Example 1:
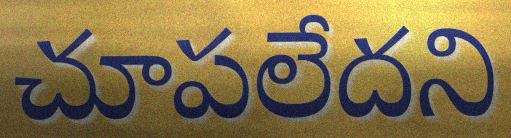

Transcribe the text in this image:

చూపలేదని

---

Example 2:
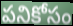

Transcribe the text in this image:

పనికోసం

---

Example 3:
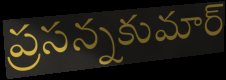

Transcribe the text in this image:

ప్రసన్నకుమార్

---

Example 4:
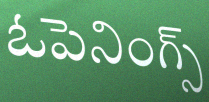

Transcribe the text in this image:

ఓపెనింగ్స్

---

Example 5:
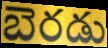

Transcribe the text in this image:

బెరడు